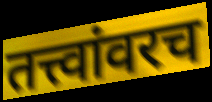
तत्त्वांवरच